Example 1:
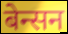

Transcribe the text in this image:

बेन्सन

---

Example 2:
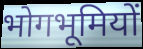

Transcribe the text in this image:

भोगभूमियों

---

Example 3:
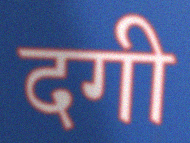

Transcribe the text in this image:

दगी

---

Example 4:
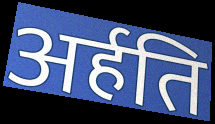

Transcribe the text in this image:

अर्हति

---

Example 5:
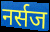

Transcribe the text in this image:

नर्सज